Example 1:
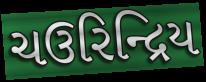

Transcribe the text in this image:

ચઉરિન્દ્રિય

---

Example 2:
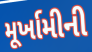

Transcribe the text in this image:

મૂર્ખામીની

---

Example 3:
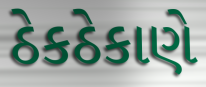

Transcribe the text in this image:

ઠેકઠેકાણે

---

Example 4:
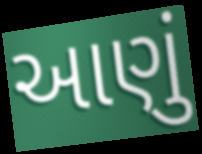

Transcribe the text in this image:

આણું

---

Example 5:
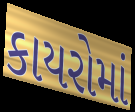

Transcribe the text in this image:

કાયરોમાં